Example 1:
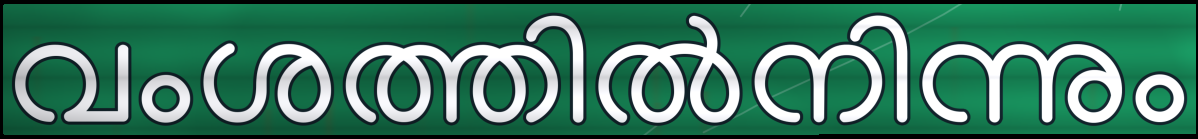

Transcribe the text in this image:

വംശത്തിൽനിന്നും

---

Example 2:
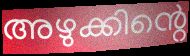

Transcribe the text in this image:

അഴുക്കിന്റെ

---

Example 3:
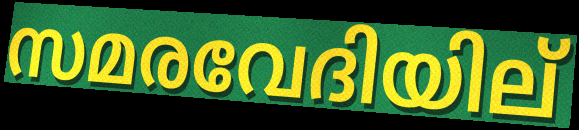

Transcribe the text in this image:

സമരവേദിയില്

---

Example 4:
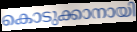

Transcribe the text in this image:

കൊടുക്കാനായി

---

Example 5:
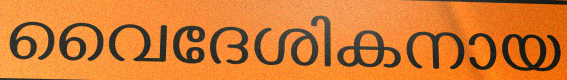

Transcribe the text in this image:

വൈദേശികനായ